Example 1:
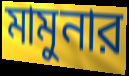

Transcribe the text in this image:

মামুনার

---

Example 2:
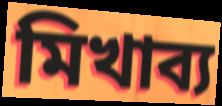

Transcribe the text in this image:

মিখাব্য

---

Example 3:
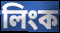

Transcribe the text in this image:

লিংক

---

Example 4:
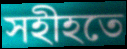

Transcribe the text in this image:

সহীহতে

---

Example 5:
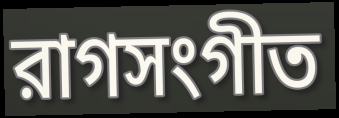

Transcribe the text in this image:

রাগসংগীত